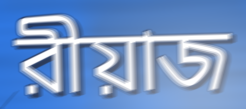
রীয়াজ